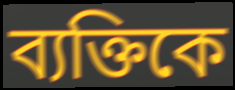
ব্যক্তিকে